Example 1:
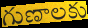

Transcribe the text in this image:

గుణాలకు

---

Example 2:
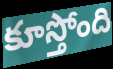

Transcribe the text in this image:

కూస్తోంది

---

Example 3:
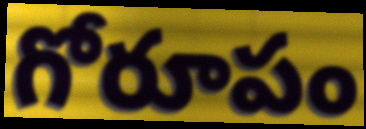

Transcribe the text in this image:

గోరూపం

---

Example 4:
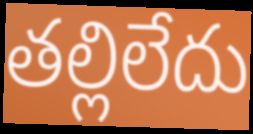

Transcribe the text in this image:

తల్లిలేదు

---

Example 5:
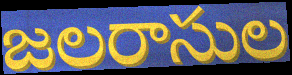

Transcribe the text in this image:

జలరాసుల